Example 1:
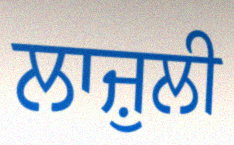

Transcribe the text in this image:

ਲਾਜ਼ੁਲੀ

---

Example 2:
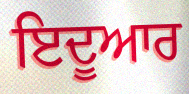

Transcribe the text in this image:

ਇਦੂਆਰ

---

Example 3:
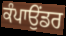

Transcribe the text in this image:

ਕੰਪਾਉਂਡਰ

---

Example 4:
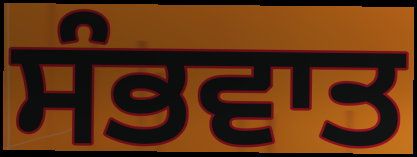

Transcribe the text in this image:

ਸੰਭਵਾਤ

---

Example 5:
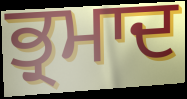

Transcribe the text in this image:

ਭ੍ਰਮਾਦ